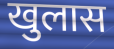
खुलास